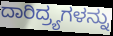
ದಾರಿದ್ರ್ಯಗಳನ್ನು